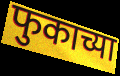
फुकाच्या